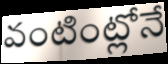
వంటింట్లోనే